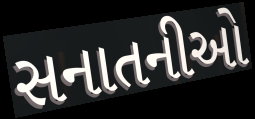
સનાતનીઓ